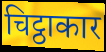
चिट्ठाकार